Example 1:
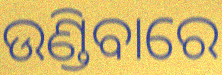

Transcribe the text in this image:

ଉଣ୍ଡିବାରେ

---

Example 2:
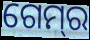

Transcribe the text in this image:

ଗେମ୍‌ର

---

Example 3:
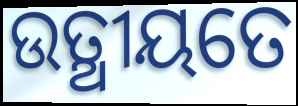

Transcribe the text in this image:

ଉତ୍ଥୀୟତେ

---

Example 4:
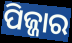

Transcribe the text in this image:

ପିଜ୍ଜାର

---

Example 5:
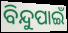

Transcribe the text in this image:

ବିନ୍ଦୁପାଇଁ